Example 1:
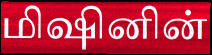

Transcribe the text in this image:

மிஷினின்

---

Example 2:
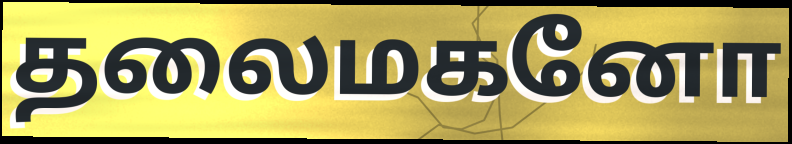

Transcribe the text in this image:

தலைமகனோ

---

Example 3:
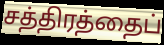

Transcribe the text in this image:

சத்திரத்தைப்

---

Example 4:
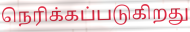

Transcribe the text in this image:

நெரிக்கப்படுகிறது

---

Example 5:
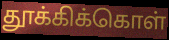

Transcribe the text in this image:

தூக்கிக்கொள்